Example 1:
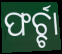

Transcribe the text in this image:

ଫର୍ଚ୍ଚା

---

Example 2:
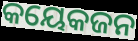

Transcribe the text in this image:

କୟେକଜନ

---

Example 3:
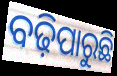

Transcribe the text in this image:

ବଢ଼ିପାରୁଛି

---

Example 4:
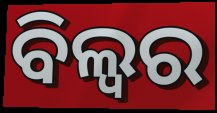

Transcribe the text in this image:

ବିଲ୍ୱର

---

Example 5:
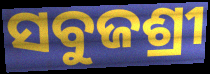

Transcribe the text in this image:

ସବୁଜଶ୍ରୀ